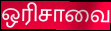
ஒரிசாவை